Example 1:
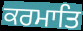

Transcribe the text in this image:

ਕਰਮਾਤਿ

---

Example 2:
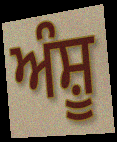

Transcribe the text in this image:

ਅੰਸ਼ੂ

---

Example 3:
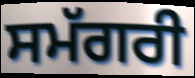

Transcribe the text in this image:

ਸਮੱਗਰੀ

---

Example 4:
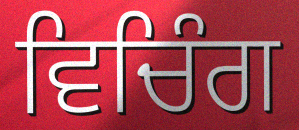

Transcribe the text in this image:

ਵਿਚਿੰਗ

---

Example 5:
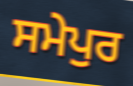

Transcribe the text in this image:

ਸਮੇਪੁਰ